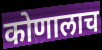
कोणालाच